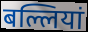
बल्लियां